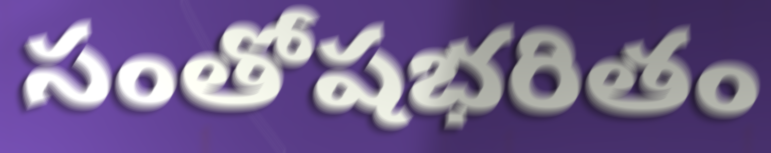
సంతోషభరితం